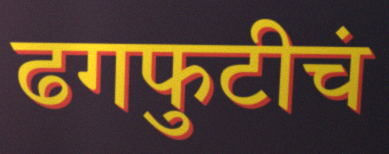
ढगफुटीचं